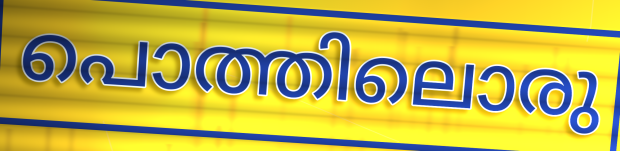
പൊത്തിലൊരു